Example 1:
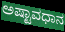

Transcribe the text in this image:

ಅಷ್ಟಾವಧಾನ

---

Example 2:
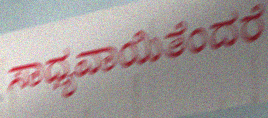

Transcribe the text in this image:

ಸಾಧ್ಯವಾಯಿತೆಂದರೆ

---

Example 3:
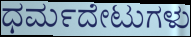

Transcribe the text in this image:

ಧರ್ಮದೇಟುಗಳು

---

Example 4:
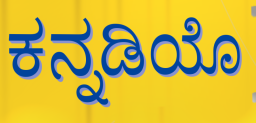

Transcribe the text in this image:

ಕನ್ನಡಿಯೊ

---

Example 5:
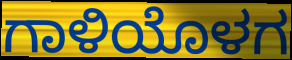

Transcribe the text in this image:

ಗಾಳಿಯೊಳಗ